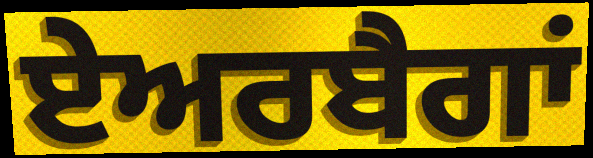
ਏਅਰਬੈਗਾਂ